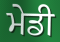
ਮੇਡੀ